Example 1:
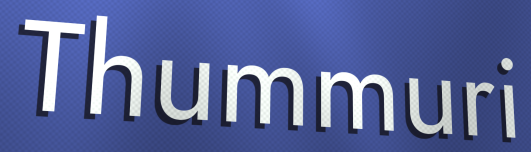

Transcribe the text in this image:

Thummuri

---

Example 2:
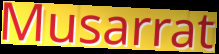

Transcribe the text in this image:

Musarrat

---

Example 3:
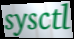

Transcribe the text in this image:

sysctl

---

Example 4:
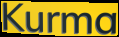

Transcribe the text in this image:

Kurma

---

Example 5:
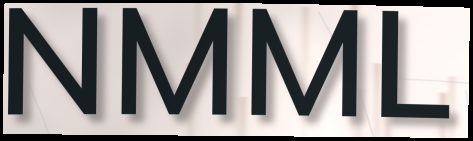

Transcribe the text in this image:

NMML